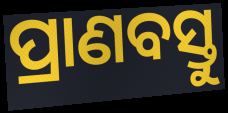
ପ୍ରାଣବସ୍ତୁ